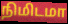
நிமிடமா